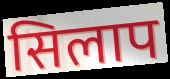
सिलाप